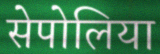
सेपोलिया